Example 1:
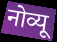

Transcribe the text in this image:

नोव्यू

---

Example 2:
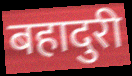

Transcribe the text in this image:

बहादुरी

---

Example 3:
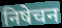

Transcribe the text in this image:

निषेचन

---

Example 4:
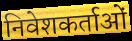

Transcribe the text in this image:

निवेशकर्ताओं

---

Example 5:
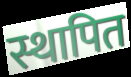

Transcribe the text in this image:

स्थापित